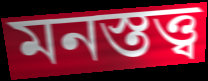
মনস্তত্ত্ব